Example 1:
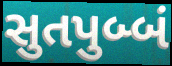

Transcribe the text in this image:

સુતપુબ્બં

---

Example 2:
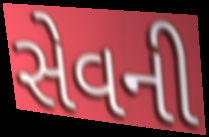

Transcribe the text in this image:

સેવની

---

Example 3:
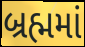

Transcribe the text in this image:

બ્રહ્મમાં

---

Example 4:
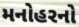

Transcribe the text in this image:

મનોહરનો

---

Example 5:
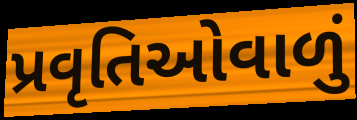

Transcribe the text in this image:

પ્રવૃતિઓવાળું